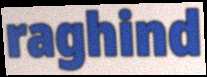
raghind